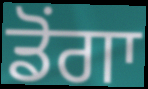
ਡੋਂਗਾ